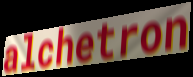
alchetron